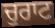
ਚੁਰਾਟ